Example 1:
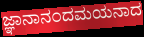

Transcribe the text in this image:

ಜ್ಞಾನಾನಂದಮಯನಾದ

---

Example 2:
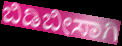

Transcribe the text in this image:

ಬಿಡಿಬೀಸಾಗಿ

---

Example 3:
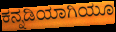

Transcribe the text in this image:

ಕನ್ನಡಿಯಾಗಿಯೂ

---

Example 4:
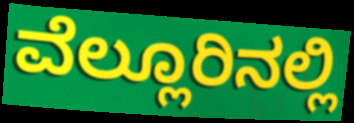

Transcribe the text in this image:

ವೆಲ್ಲೂರಿನಲ್ಲಿ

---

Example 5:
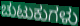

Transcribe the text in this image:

ಚುಟುಕುಗಳು